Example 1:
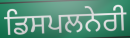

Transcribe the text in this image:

ਡਿਸਪਲਨੇਰੀ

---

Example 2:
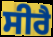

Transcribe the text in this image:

ਸੀਰੈ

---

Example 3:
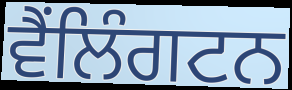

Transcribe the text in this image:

ਵੈਂਲਿੰਗਟਨ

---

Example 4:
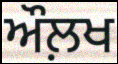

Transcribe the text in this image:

ਔਲ਼ਖ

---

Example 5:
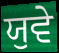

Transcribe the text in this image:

ਯੁਵੇ